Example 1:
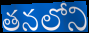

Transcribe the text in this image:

తనలోని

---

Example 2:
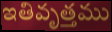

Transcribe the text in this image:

ఇతివృత్తము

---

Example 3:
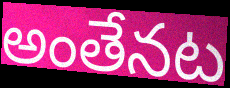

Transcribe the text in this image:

అంతేనట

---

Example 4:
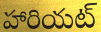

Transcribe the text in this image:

హారియట్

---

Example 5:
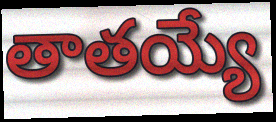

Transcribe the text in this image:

తాతయ్యే